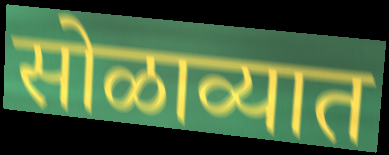
सोळाव्यात